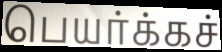
பெயர்க்கச்